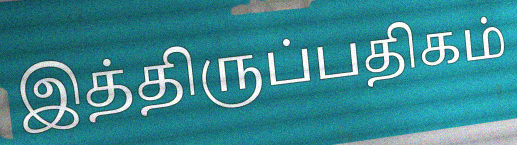
இத்திருப்பதிகம்